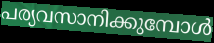
പര്യവസാനിക്കുമ്പോൾ